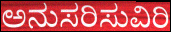
ಅನುಸರಿಸುವಿರಿ